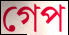
গেপ